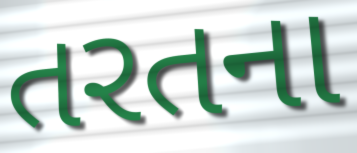
તરતના